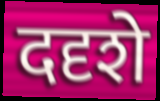
ददृशे